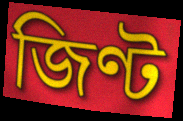
জিণ্ট